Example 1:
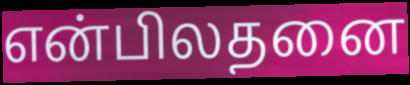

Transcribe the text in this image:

என்பிலதனை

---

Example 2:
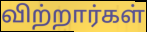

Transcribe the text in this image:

விற்றார்கள்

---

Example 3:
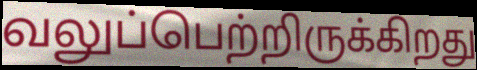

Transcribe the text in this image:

வலுப்பெற்றிருக்கிறது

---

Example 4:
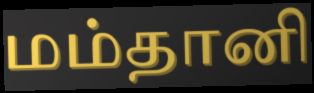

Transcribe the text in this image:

மம்தானி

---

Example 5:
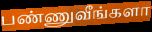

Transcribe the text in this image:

பண்ணுவீங்களா